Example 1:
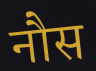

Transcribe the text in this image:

नौस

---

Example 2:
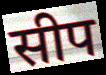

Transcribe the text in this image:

सीप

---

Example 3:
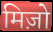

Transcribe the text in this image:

मिज़ो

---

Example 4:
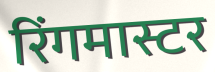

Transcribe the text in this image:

रिंगमास्टर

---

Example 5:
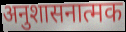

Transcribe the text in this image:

अनुशासनात्मक